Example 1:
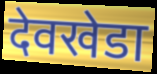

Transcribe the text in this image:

देवखेडा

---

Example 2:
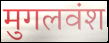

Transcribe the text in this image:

मुगलवंश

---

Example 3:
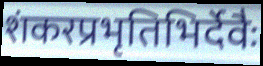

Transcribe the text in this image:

शंकरप्रभृतिभिर्देवैः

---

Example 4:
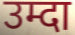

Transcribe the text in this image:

उम्‍दा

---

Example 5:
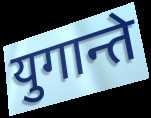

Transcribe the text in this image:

युगान्ते